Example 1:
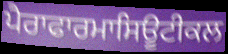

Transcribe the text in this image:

ਪੈਰਾਫਾਰਮਾਸਿਊਟੀਕਲ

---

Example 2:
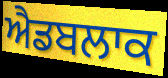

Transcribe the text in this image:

ਐਡਬਲਾਕ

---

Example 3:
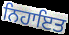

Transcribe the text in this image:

ਨਿਹਾਇਤ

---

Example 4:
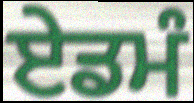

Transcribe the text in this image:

ਏਡਮੰ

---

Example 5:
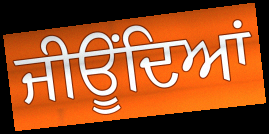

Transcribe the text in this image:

ਜੀਊਂਦਿਆਂ